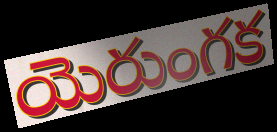
యెరుంగక